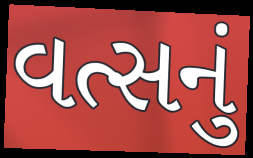
વત્સનું